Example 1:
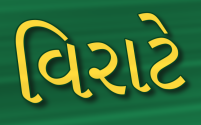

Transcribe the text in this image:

વિરાટે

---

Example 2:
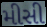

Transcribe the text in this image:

મીસી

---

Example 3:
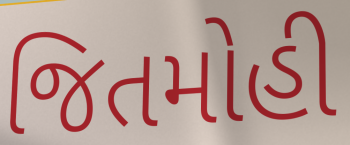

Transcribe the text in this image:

જિતમોહી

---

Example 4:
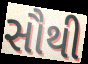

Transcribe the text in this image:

સૌથી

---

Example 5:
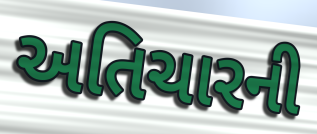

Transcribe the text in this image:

અતિચારની